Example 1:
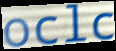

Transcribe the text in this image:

oclc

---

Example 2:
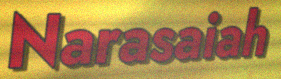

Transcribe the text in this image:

Narasaiah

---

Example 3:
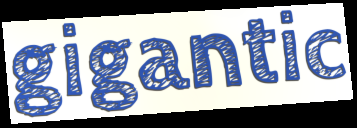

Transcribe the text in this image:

gigantic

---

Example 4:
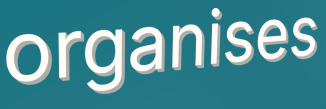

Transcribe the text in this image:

organises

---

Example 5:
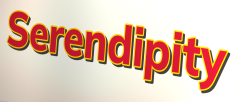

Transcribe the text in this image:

Serendipity